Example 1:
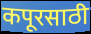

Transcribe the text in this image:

कपूरसाठी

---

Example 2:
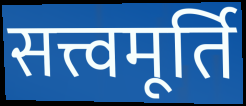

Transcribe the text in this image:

सत्त्वमूर्ति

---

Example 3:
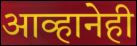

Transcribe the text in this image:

आव्हानेही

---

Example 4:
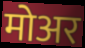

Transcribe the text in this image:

मोअर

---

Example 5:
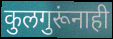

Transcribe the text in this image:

कुलगुरूंनाही